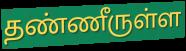
தண்ணீருள்ள